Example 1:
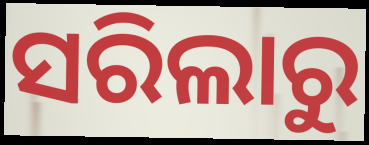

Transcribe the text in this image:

ସରିଲାରୁ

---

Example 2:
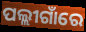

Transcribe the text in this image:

ପଲ୍ଲୀଗାଁରେ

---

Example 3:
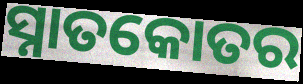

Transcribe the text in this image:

ସ୍ନାତକୋତର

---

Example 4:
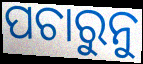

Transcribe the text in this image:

ପଚାରୁନୁ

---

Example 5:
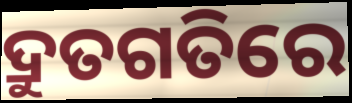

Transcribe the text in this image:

ଦ୍ରୁତଗତିରେ